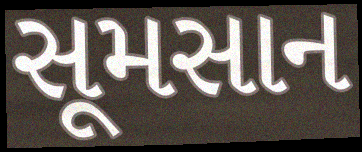
સૂમસાન